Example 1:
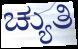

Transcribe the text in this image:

ಚ್ಯುತಿ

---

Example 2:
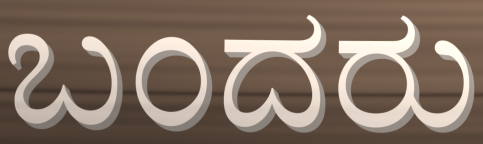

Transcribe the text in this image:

ಬಂದರು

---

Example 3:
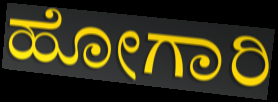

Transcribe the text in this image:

ಹೋಗಾರಿ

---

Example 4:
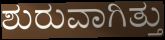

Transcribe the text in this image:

ಶುರುವಾಗಿತ್ತು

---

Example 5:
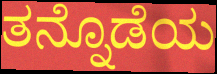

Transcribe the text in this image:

ತನ್ನೊಡೆಯ